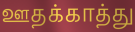
ஊதக்காத்து